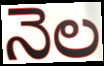
నెల